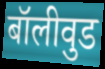
बॉलीवुड